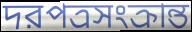
দরপত্রসংক্রান্ত